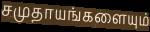
சமுதாயங்களையும்